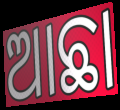
ଆଛା